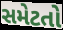
સમેટતો